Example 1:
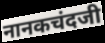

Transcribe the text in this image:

नानकचंदजी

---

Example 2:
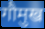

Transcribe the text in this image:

गौमुख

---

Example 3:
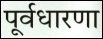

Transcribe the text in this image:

पूर्वधारणा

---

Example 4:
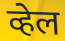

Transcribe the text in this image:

व्हेल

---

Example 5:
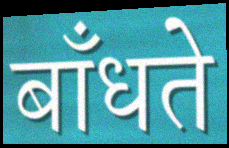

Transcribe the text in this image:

बाँधते